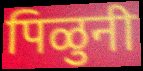
पिळुनी